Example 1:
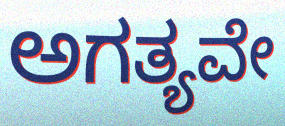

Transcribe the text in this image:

ಅಗತ್ಯವೇ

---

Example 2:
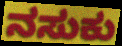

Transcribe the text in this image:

ನಸುಕು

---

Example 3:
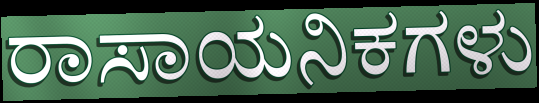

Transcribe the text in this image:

ರಾಸಾಯನಿಕಗಳು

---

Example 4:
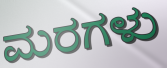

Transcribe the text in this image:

ಮರಗಳು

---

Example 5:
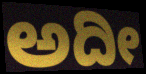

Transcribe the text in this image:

ಅದೀ